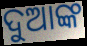
ଦୁଆଙ୍କ